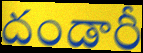
దండారీ